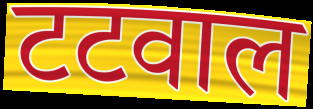
टटवाल